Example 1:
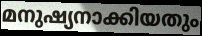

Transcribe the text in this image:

മനുഷ്യനാക്കിയതും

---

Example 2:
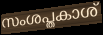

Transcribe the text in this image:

സംശപ്തകാശ്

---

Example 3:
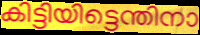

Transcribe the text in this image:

കിട്ടിയിട്ടെന്തിനാ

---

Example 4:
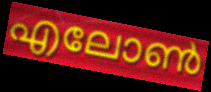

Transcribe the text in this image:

എലോൺ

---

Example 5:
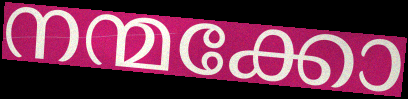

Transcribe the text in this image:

നന്മക്കോ